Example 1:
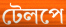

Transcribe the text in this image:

টেলপে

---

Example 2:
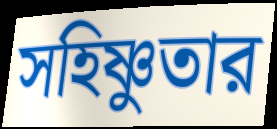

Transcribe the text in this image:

সহিষ্ণুতার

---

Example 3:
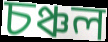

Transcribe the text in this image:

চঞ্চল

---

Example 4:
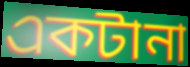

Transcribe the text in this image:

একটানা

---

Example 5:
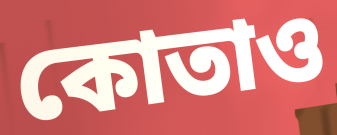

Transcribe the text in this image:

কোতাও